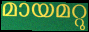
മായമറ്റു